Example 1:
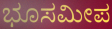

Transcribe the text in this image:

ಭೂಸಮೀಪ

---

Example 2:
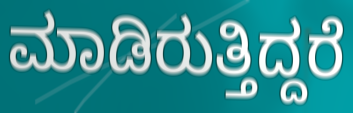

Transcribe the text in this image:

ಮಾಡಿರುತ್ತಿದ್ದರೆ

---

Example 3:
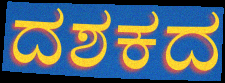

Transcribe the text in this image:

ದಶಕದ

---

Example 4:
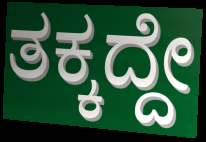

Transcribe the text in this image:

ತಕ್ಕದ್ದೇ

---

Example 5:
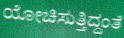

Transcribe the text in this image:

ಯೋಚಿಸುತ್ತಿದ್ದಂತೆ